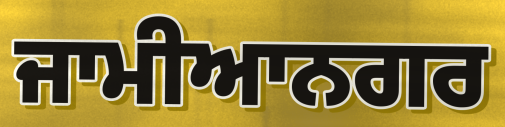
ਜਾਮੀਆਨਗਰ